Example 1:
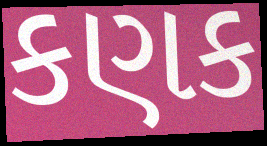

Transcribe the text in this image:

કણક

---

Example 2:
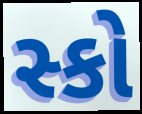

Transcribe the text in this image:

સ્કો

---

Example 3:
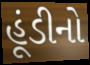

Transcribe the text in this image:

હૂંડીનો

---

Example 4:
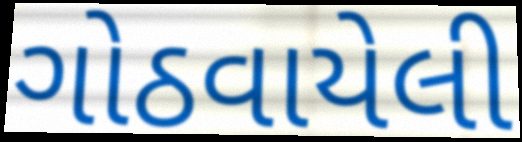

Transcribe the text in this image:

ગોઠવાયેલી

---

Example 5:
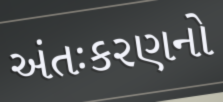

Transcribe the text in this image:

અંતઃકરણનો